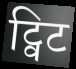
ट्विट